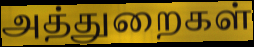
அத்துறைகள்